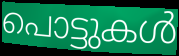
പൊട്ടുകൾ